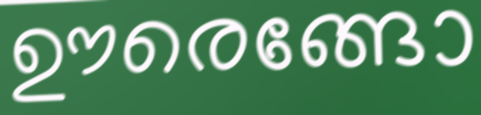
ഊരെങ്ങോ